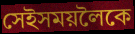
সেইসময়লৈকে